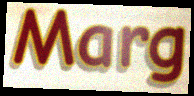
Marg